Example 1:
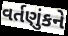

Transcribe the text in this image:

વર્તણુંકને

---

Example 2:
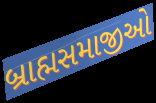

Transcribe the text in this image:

બ્રાહ્મસમાજીઓ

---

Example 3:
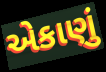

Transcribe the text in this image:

એકાણું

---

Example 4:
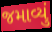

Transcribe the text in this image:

જમાવ્યું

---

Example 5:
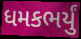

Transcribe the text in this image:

ધમકભર્યું